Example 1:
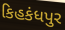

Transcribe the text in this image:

કિહકંધપુર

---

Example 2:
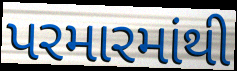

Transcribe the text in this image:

પરમારમાંથી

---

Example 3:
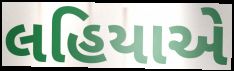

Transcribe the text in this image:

લહિયાએ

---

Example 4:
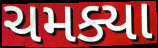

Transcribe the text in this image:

ચમક્યા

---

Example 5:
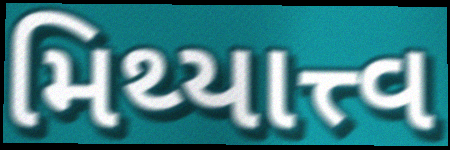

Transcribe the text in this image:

મિથ્યાત્ત્વ